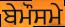
ਬੇਮੌਸਮੇ